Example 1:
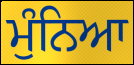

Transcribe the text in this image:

ਮੁੰਨਿਆ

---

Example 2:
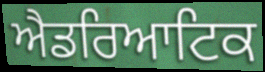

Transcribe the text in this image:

ਐਡਰਿਆਟਿਕ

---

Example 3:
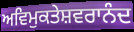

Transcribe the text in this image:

ਅਵਿਮੁਕਤੇਸ਼ਵਰਾਨੰਦ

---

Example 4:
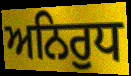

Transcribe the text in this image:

ਅਨਿਰੁਧ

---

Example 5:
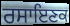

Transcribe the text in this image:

ਰਸਾਇਣਕ